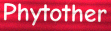
Phytother